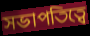
সভাপতিত্বে